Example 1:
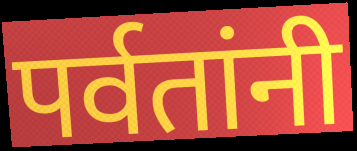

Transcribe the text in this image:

पर्वतांनी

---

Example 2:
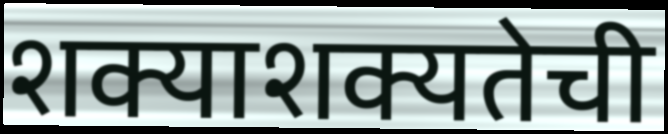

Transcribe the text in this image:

शक्याशक्यतेची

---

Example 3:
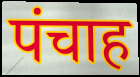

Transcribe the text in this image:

पंचाह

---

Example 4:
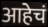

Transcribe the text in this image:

आहेचं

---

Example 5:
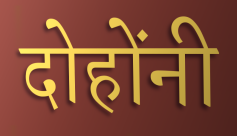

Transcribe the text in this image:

दोहोंनी